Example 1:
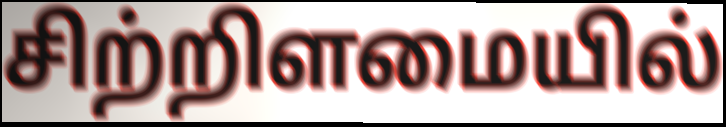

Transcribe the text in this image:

சிற்றிளமையில்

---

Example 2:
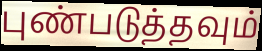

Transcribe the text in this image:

புண்படுத்தவும்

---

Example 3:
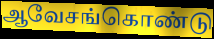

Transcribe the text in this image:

ஆவேசங்கொண்டு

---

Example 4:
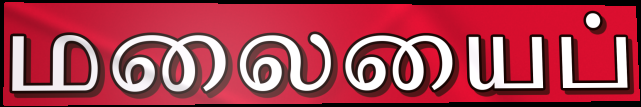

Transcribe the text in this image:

மலையைப்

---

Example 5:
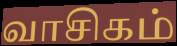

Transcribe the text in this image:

வாசிகம்